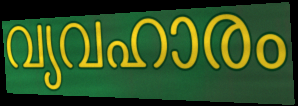
വ്യവഹാരം